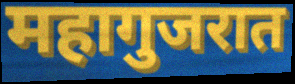
महागुजरात